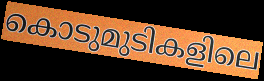
കൊടുമുടികളിലെ